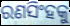
ରଣସିଂହକୁ